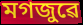
মগজুৱে